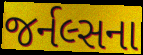
જર્નલ્સના